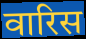
वारिस